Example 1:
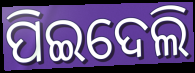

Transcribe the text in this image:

ପିଇଦେଲି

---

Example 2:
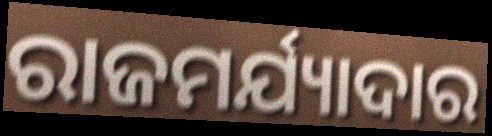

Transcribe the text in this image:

ରାଜମର୍ଯ୍ୟାଦାର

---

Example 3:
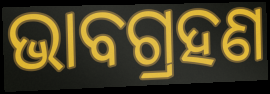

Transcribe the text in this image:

ଭାବଗ୍ରହଣ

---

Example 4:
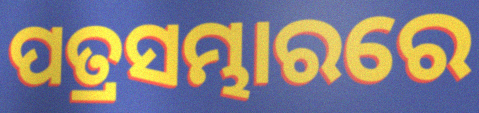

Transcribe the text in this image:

ପତ୍ରସମ୍ଭାରରେ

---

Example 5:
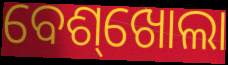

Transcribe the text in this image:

ବେଶ୍‌ଖୋଲା